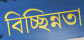
বিচ্ছিন্নতা